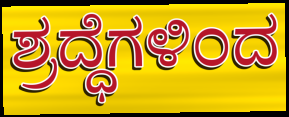
ಶ್ರದ್ಧೆಗಳಿಂದ